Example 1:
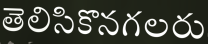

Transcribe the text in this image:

తెలిసికొనగలరు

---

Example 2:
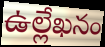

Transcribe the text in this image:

ఉల్లేఖనం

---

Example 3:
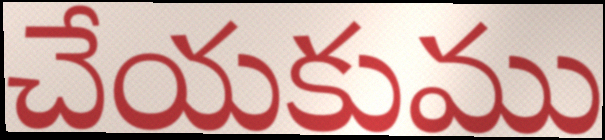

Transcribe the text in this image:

చేయకుము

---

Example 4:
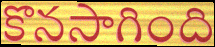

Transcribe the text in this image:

కొనసాగింది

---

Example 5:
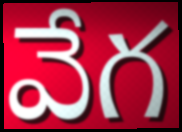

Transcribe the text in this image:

వేగ